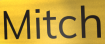
Mitch